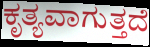
ಕೃತ್ಯವಾಗುತ್ತದೆ